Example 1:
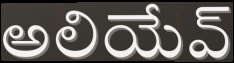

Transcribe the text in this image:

అలియేవ్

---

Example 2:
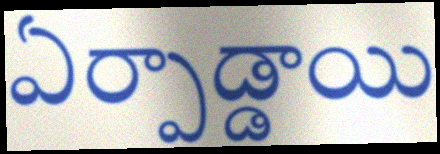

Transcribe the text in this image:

ఏర్పాడ్డాయి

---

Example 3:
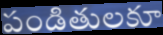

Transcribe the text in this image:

పండితులకూ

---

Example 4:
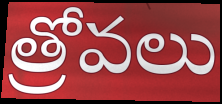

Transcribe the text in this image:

త్రోవలు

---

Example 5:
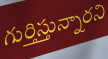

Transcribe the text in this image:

గుర్తిస్తున్నారని